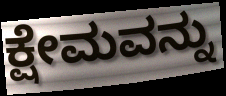
ಕ್ಷೇಮವನ್ನು